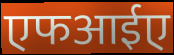
एफआईए